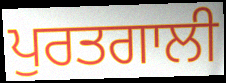
ਪੁਰਤਗਾਲੀ